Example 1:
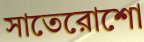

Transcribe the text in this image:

সাতেরোশো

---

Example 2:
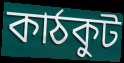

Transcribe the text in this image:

কাঠকুট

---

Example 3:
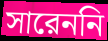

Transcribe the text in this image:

সারেননি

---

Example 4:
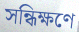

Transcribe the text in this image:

সন্ধিক্ষণে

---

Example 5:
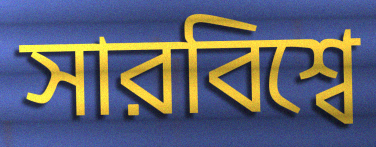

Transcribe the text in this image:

সারবিশ্বে